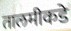
तालमीकडे